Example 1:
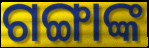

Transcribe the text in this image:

ଗଙ୍ଗାଙ୍କ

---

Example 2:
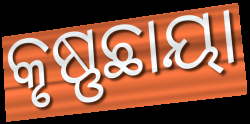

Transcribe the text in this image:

କୃଷ୍ଣଛାୟା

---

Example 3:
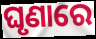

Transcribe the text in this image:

ଘୃଣାରେ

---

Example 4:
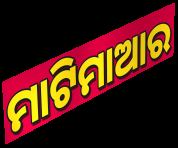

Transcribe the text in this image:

ମାଟିମାଆର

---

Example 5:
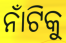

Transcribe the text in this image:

ନାଁଟିକୁ